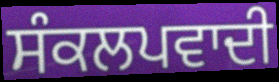
ਸੰਕਲਪਵਾਦੀ